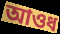
আওধ